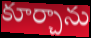
కూర్చాను